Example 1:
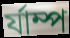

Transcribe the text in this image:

র্যাম্প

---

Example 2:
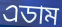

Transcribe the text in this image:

এডাম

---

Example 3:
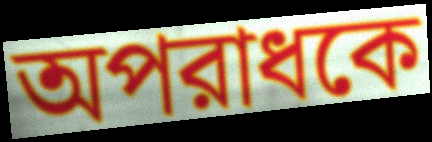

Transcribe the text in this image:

অপরাধকে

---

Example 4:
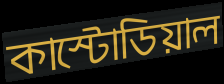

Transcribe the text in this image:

কাস্টোডিয়াল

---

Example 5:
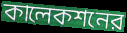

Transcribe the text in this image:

কালেকশনের